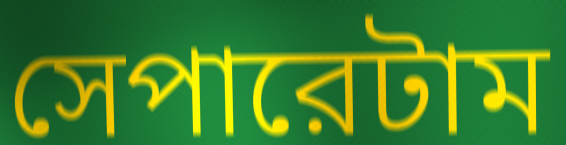
সেপারেটাম